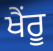
ਖੈਂਰੂ